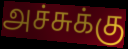
அச்சுக்கு